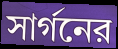
সার্গনের